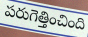
పరుగెత్తించింది